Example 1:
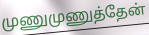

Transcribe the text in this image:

முணுமுணுத்தேன்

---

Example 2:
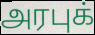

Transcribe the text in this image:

அரபுக்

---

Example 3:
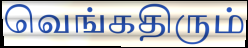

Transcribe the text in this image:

வெங்கதிரும்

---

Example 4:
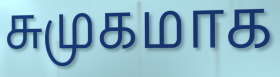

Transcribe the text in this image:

சுமுகமாக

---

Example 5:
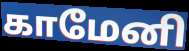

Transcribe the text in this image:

காமேனி